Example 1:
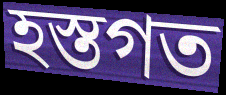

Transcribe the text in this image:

হস্তগত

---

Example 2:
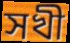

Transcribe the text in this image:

সখী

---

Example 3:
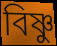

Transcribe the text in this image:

বিষ্ণু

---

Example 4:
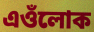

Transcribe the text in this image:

এওঁলোক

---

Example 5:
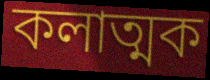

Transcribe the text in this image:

কলাত্মক